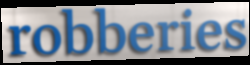
robberies